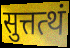
सुत्तत्थं